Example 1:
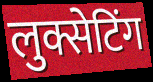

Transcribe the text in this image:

लुक्सेटिंग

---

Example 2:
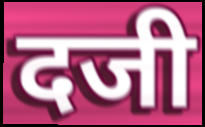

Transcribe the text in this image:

दजी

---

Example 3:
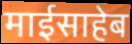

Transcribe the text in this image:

माईसाहेब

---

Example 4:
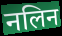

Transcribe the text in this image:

नलिन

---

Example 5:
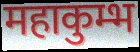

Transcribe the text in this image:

महाकुम्भ